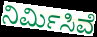
ನಿರ್ಮಿಸಿವೆ